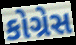
કોગ્રેસ